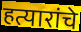
हत्यारांचे